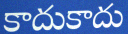
కాదుకాదు